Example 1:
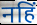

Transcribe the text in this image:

नहिं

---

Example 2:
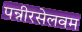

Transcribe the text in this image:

पन्नीरसेलवम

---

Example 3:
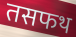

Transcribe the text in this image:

तसफथ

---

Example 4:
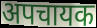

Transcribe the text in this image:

अपचायक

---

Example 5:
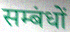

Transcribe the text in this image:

सम्बंधों